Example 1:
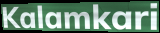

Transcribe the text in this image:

Kalamkari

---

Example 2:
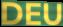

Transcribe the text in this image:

DEU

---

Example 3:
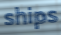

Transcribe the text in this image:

ships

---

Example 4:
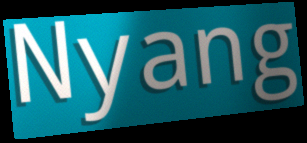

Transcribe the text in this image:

Nyang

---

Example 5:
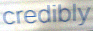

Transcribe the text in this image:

credibly